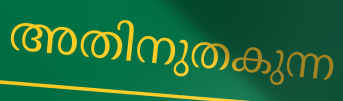
അതിനുതകുന്ന